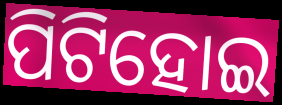
ପିଟିହୋଇ